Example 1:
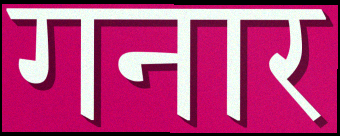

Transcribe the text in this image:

गनार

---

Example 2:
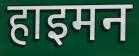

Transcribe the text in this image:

हाइमन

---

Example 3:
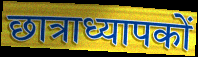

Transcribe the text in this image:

छात्राध्यापकों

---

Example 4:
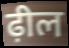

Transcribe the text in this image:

ढ़ील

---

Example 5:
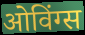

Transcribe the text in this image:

ओविंग्स